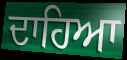
ਦਾਹਿਆ